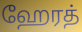
ஹேரத்